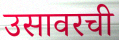
उसावरची